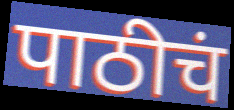
पाठीचं